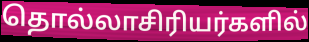
தொல்லாசிரியர்களில்